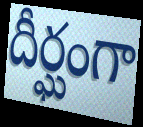
దీర్ఘంగా